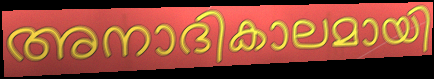
അനാദികാലമായി